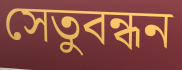
সেতুবন্ধন